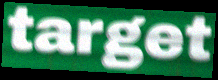
target